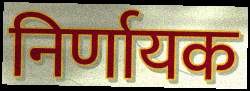
निर्णायक